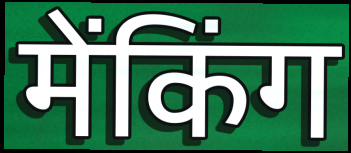
मेंकिंग